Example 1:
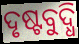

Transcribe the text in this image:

ଦୃଷ୍ଟବୁଦ୍ଧି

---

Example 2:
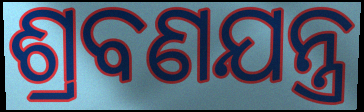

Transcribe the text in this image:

ଶ୍ରବଣଯନ୍ତ୍ର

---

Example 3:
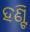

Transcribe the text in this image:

ହଣ୍ଟି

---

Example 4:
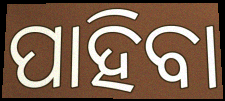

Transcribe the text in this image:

ପାହିବା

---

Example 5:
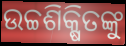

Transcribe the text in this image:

ଉଚ୍ଚଶିକ୍ଷିତଙ୍କୁ